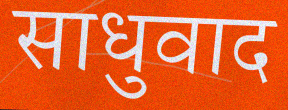
साधुवाद